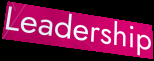
Leadership